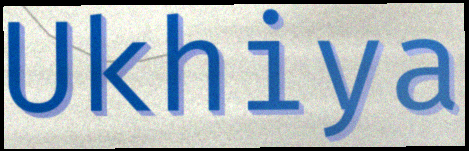
Ukhiya